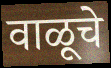
वाळूचे